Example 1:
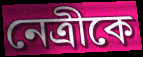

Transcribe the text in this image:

নেত্রীকে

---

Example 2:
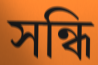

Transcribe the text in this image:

সন্ধি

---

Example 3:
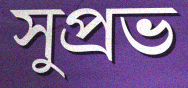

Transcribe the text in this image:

সুপ্রভ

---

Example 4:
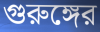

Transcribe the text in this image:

গুরুঙ্গের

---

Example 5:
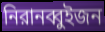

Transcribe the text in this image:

নিরানব্বুইজন